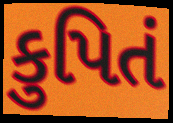
કુપિતં